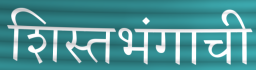
शिस्तभंगाची